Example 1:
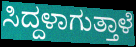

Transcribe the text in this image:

ಸಿದ್ದಳಾಗುತ್ತಾಳೆ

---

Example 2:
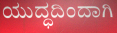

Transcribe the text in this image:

ಯುದ್ಧದಿಂದಾಗಿ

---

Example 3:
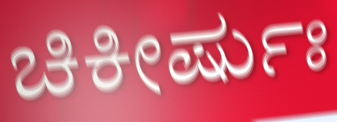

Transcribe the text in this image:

ಚಿಕೀರ್ಷುಃ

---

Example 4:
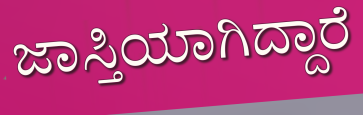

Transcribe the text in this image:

ಜಾಸ್ತಿಯಾಗಿದ್ದಾರೆ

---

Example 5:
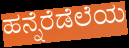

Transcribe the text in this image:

ಹನ್ನೆರೆಡೆಲೆಯ